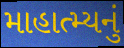
માહાત્મ્યનું